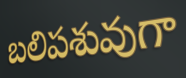
బలిపశువుగా